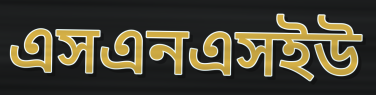
এসএনএসইউ